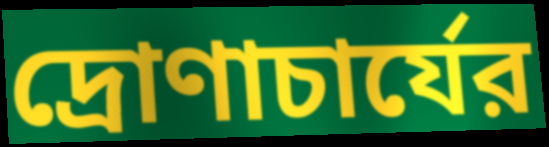
দ্রোণাচার্যের